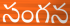
సంగన